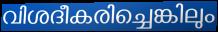
വിശദീകരിച്ചെങ്കിലും